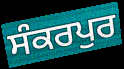
ਸੰਕਰਪੁਰ